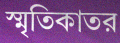
স্মৃতিকাতর